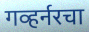
गव्हर्नरचा